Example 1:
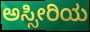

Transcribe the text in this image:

ಅಸ್ಸೀರಿಯ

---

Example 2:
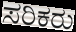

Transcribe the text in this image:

ಸರಿಕರು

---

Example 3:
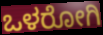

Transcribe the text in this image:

ಒಳರೋಗಿ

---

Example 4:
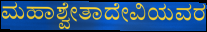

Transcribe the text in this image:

ಮಹಾಶ್ವೇತಾದೇವಿಯವರ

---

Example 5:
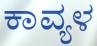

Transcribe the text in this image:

ಕಾವ್ಯಳ